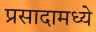
प्रसादामध्ये